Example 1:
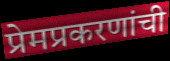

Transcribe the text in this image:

प्रेमप्रकरणांची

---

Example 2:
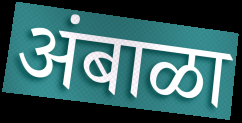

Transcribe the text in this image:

अंबाळा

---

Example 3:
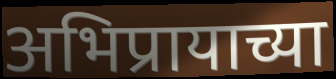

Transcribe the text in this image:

अभिप्रायाच्या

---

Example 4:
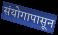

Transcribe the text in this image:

संयोगापासून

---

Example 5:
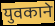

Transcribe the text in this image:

युवकाने